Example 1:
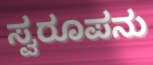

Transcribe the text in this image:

ಸ್ವರೂಪನು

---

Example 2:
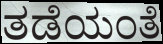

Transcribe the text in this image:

ತಡೆಯಂತೆ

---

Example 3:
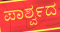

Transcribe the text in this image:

ಪಾರ್ಶ್ವದ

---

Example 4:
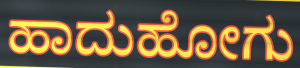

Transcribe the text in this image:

ಹಾದುಹೋಗು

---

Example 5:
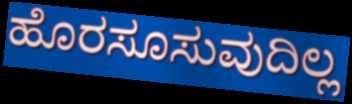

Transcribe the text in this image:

ಹೊರಸೂಸುವುದಿಲ್ಲ